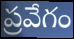
ప్రవేగం